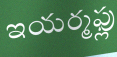
ఇయర్మఫ్లు